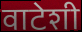
वाटेशी